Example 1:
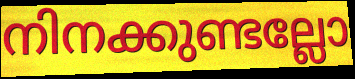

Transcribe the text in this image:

നിനക്കുണ്ടല്ലോ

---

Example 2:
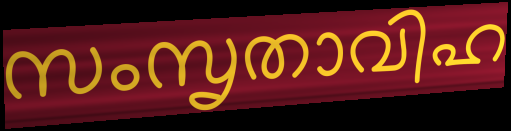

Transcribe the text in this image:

സംസൃതാവിഹ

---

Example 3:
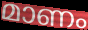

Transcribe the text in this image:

മാണം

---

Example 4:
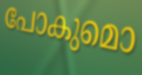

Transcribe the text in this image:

പോകുമൊ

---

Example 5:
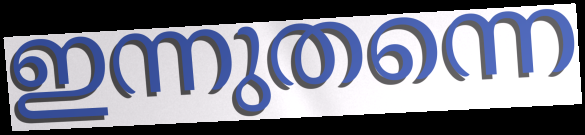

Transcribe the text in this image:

ഇന്നുതന്നെ